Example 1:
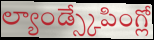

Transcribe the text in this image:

ల్యాండ్స్కేపింగ్లో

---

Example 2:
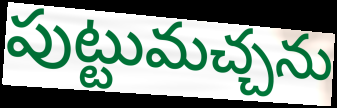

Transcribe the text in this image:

పుట్టుమచ్చను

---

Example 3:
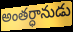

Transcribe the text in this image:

అంతర్ధానుడు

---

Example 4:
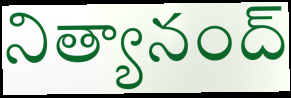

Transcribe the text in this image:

నిత్యానంద్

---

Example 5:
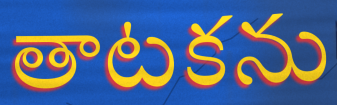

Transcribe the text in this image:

తాటకను